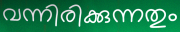
വന്നിരിക്കുന്നതും